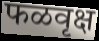
फळवृक्ष